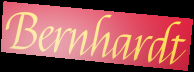
Bernhardt